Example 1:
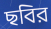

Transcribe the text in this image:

ছবির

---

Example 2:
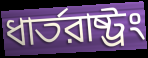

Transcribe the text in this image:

ধার্তরাষ্ট্রং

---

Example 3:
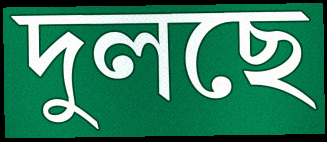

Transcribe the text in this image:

দুলছে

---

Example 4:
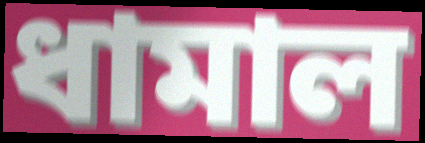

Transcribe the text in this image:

ধামাল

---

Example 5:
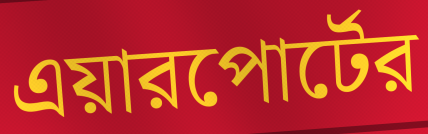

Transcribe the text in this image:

এয়ারপোর্টের